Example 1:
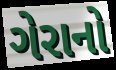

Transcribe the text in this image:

ગેરાનો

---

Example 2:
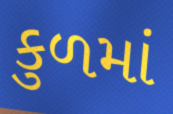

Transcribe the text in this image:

કુળમાં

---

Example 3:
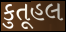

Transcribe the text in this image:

કુતૂહલ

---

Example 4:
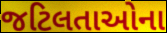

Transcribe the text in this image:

જટિલતાઓના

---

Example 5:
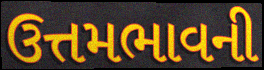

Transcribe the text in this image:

ઉત્તમભાવની